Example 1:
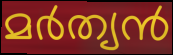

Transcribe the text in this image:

മർത്യൻ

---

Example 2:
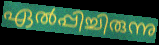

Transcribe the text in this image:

ഏൽപ്പിച്ചിരുന്നു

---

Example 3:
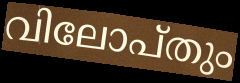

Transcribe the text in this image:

വിലോപ്തും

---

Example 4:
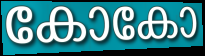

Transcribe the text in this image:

കോകോ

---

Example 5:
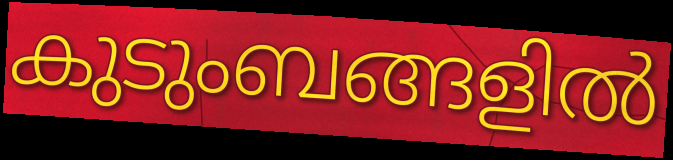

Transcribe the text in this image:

കുടുംബങ്ങളിൽ